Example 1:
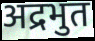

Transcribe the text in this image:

अद्रभुत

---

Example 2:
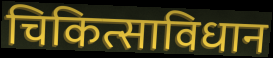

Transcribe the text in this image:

चिकित्साविधान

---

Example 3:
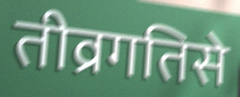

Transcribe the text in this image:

तीव्रगतिसे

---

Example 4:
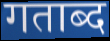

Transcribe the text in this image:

गताब्द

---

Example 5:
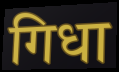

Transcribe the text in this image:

गिधा